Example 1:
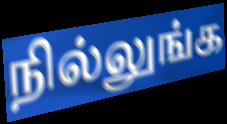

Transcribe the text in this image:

நில்லுங்க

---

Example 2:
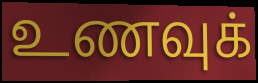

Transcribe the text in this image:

உணவுக்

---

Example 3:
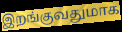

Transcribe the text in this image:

இறங்குவதுமாக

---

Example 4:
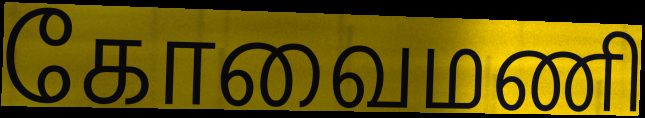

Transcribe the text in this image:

கோவைமணி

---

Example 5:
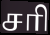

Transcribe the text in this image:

சரி